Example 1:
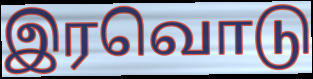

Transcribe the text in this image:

இரவொடு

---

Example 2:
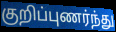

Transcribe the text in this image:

குறிப்புணர்ந்து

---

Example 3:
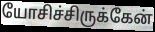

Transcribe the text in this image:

யோசிச்சிருக்கேன்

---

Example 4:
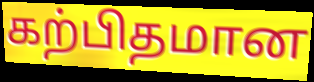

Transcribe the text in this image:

கற்பிதமான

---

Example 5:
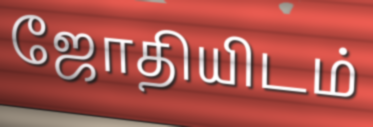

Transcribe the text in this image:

ஜோதியிடம்